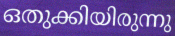
ഒതുക്കിയിരുന്നു